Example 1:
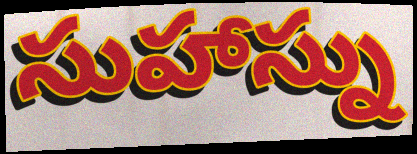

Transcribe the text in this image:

సుహాస్ను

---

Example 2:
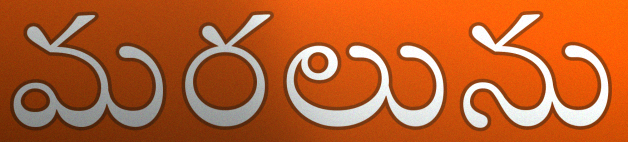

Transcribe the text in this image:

మరలును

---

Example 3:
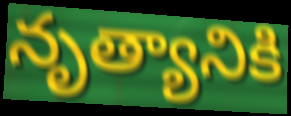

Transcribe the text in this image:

నృత్యానికి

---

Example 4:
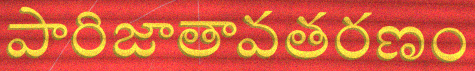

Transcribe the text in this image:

పారిజాతావతరణం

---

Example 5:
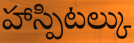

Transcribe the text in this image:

హాస్పిటల్కు